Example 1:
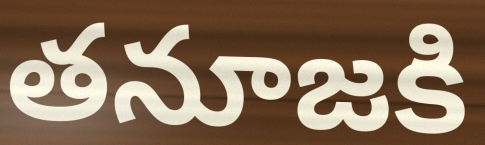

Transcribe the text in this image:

తనూజకి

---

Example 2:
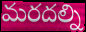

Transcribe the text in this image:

మరదల్ని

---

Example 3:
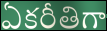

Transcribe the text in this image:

ఏకరీతిగా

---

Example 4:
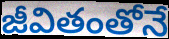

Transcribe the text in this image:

జీవితంతోనే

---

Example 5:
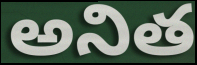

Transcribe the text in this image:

అనిత